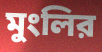
মুংলির